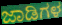
ಜಾಡಿಗಳ